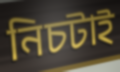
নিচটাই